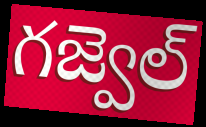
గజ్వెల్